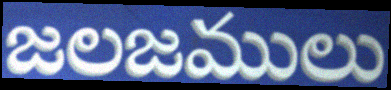
జలజములు